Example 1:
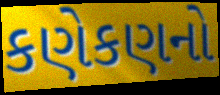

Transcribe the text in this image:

કણેકણનો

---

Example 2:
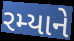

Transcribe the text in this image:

રમ્યાને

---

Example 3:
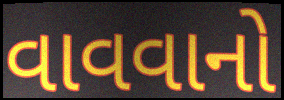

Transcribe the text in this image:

વાવવાનો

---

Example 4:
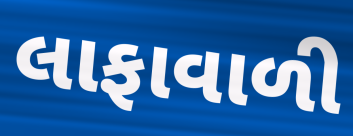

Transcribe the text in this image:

લાફાવાળી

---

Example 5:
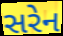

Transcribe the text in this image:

સરેન